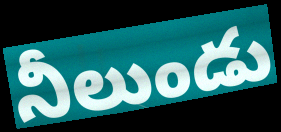
నీలుండు